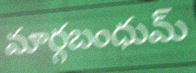
మార్గబంధుమ్